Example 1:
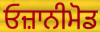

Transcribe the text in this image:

ਓਜ਼ਾਨੀਮੋਡ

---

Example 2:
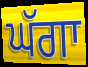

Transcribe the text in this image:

ਘੱਗਾ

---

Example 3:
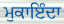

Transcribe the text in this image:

ਮੁਕਾਇੰਦਾ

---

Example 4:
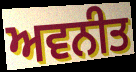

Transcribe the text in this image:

ਅਵਨੀਤ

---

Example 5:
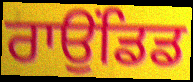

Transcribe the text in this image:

ਰਾਉਂਡਿਡ